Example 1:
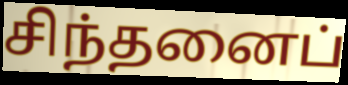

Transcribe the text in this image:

சிந்தனைப்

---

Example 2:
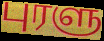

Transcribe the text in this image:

புரளு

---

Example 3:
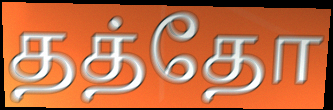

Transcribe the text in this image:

தத்தோ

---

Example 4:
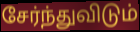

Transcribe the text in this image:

சேர்ந்துவிடும்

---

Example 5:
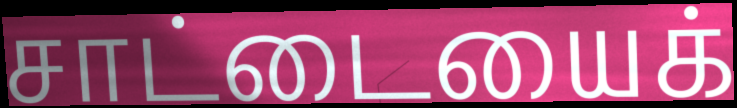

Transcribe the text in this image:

சாட்டையைக்